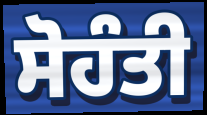
ਸੋਹੰਤੀ